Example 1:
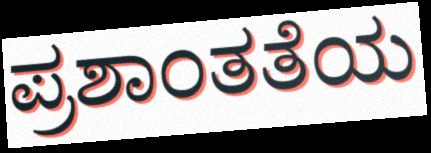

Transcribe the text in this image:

ಪ್ರಶಾಂತತೆಯ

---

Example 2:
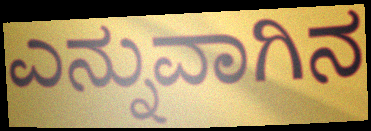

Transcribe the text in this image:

ಎನ್ನುವಾಗಿನ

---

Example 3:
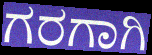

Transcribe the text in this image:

ಗರಗಾಗಿ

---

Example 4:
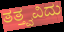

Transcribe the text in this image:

ತತ್ತ್ವವಿದು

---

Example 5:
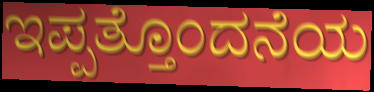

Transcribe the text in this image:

ಇಪ್ಪತ್ತೊಂದನೆಯ